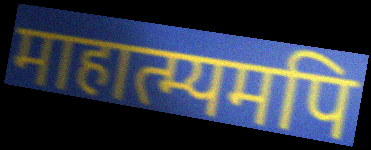
माहात्म्यमपि